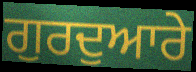
ਗੁਰਦੁਆਰੇ